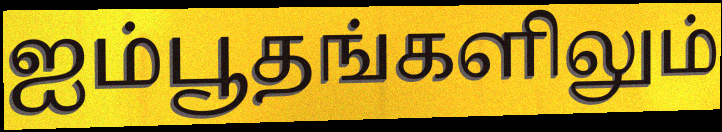
ஐம்பூதங்களிலும்